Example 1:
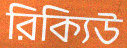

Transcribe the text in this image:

রিক্যিউ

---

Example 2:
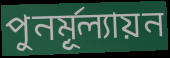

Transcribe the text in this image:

পুনর্মূল্যায়ন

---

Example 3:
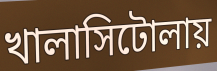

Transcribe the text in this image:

খালাসিটোলায়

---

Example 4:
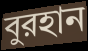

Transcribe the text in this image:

বুরহান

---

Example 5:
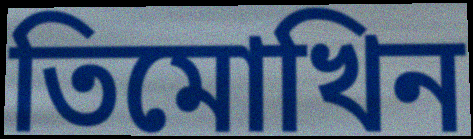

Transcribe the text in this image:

তিমোখিন